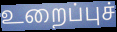
உறைப்புச்